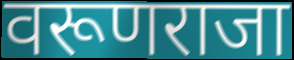
वरूणराजा